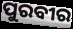
ପୁରବୀର